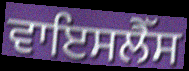
ਵਾਇਸਲੈੱਸ